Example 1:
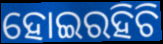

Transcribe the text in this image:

ହୋଇରହିଚି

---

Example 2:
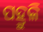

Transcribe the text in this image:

ପହ୍ରୁଳି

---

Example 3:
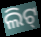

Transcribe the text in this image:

ଲିଟ୍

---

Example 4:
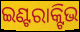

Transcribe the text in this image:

ଇଣ୍ଟରାକ୍ଟିଭ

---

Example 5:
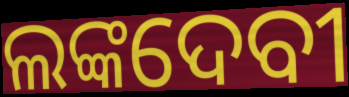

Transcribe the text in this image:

ଲଙ୍କଦେବୀ